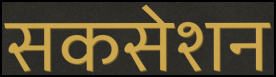
सकसेशन